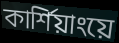
কার্শিয়াংয়ে